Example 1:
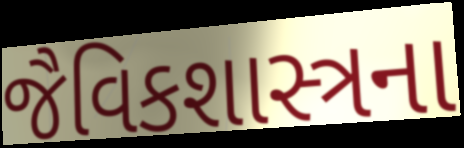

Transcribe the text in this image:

જૈવિકશાસ્ત્રના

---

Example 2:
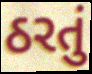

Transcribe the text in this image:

ઠરતું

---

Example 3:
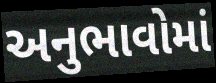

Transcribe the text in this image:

અનુભાવોમાં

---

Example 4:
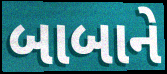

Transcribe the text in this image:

બાબાને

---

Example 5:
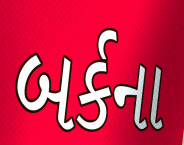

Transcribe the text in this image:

બર્કના